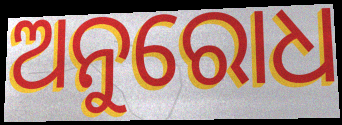
ଅନୁରୋଧ